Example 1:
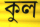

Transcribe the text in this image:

কুল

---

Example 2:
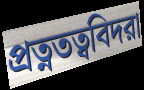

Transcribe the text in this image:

প্রত্নতত্ববিদরা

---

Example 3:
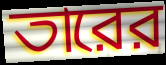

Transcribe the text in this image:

তারের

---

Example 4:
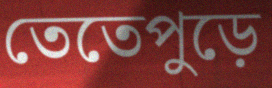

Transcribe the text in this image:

তেতেপুড়ে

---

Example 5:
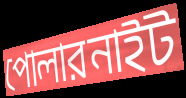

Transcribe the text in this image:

পোলারনাইট